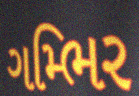
ગમ્ભિર